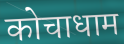
कोचाधाम